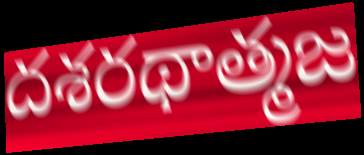
దశరథాత్మజ